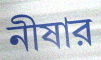
নীষার